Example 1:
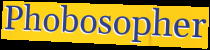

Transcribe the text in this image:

Phobosopher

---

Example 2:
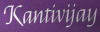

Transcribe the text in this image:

Kantivijay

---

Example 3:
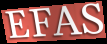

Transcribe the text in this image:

EFAS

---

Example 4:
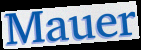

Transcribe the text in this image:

Mauer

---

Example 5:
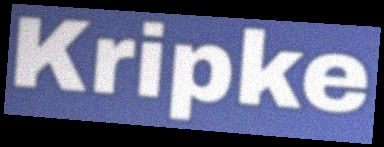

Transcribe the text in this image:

Kripke